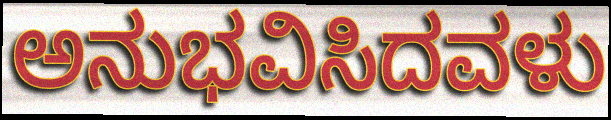
ಅನುಭವಿಸಿದವಳು